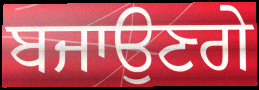
ਬਜਾਉਣਗੇ